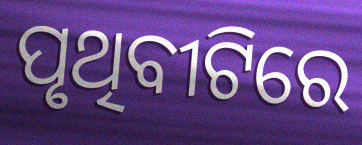
ପୃଥିବୀଟିରେ